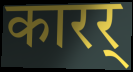
कारर्